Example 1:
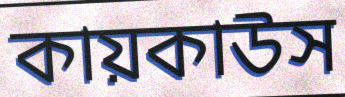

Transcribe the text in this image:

কায়কাউস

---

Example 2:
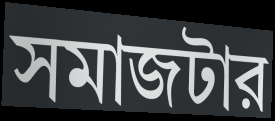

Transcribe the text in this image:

সমাজটার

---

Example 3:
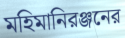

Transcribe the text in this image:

মহিমানিরঞ্জনের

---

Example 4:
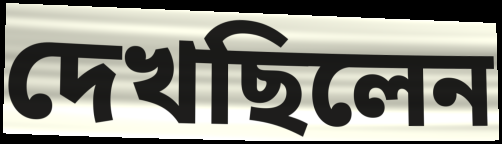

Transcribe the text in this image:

দেখছিলেন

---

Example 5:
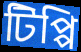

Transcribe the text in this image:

টিপ্পি